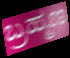
ಬ್ರಹ್ಮಣ